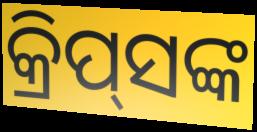
କ୍ରିପ୍‌ସଙ୍କ